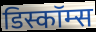
डिस्कॉम्स